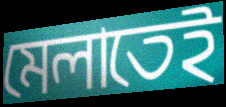
মেলাতেই